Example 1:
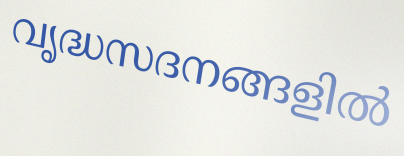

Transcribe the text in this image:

വൃദ്ധസദനങ്ങളിൽ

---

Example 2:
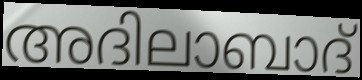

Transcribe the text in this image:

അദിലാബാദ്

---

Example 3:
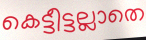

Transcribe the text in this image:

കെട്ടീട്ടല്ലാതെ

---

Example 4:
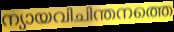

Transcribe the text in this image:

ന്യായവിചിന്തനത്തെ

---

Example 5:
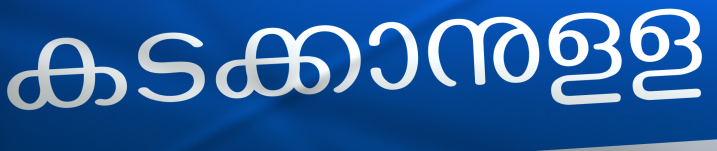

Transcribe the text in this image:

കടക്കാനുളള